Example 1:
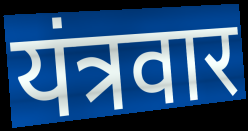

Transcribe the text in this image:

यंत्रवार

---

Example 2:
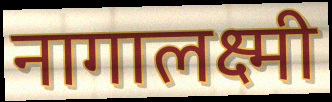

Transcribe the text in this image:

नागालक्ष्मी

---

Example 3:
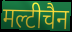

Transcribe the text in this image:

मल्टीचैन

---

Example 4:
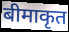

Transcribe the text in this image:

बीमाकृत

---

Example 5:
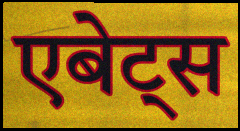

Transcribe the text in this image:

एबेट्स